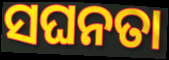
ସଘନତା